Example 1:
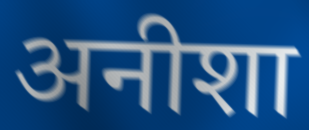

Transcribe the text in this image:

अनीशा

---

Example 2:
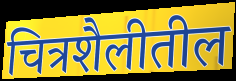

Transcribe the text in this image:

चित्रशैलीतील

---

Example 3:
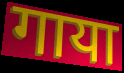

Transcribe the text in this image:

गाया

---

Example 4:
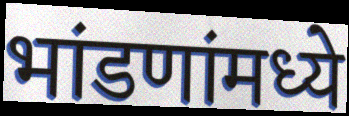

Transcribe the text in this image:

भांडणांमध्ये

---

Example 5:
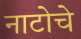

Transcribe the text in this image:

नाटोचे